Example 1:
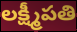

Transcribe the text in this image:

లక్ష్మీపతి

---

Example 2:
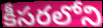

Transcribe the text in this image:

కీసరలోని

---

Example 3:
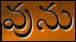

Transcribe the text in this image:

వును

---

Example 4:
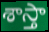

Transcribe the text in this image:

శాస్తా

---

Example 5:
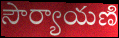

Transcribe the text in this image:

సౌర్యాయణి